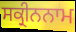
ਸਕ੍ਰੀਨਨਾਮ